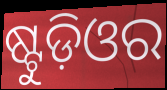
ଷ୍ଟୁଡ଼ିଓର